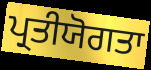
ਪ੍ਰਤੀਯੋਗਤਾ